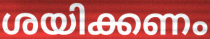
ശയിക്കണം